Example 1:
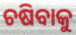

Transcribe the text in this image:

ଚଷିବାକୁ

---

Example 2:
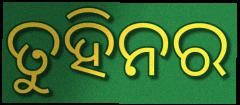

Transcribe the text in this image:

ତୁହିନର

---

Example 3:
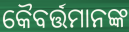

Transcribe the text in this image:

କୈବର୍ତ୍ତମାନଙ୍କ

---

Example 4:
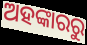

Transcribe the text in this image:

ଅହଙ୍କାରରୁ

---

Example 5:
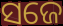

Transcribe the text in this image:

ସଜେ